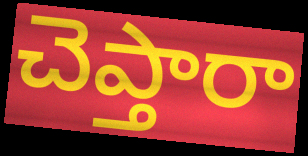
చెప్తారా